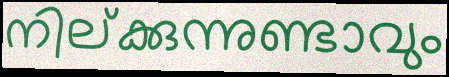
നില്ക്കുന്നുണ്ടാവും